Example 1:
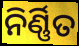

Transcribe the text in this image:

ନିର୍ଣ୍ଣିତ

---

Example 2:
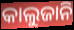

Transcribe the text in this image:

କାଲୁଜାନି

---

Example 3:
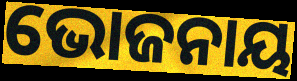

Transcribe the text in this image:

ଭୋଜନାୟ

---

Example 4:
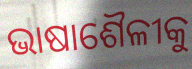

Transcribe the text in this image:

ଭାଷାଶୈଳୀକୁ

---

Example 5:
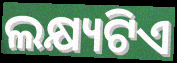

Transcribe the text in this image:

ଲକ୍ଷ୍ୟଟିଏ